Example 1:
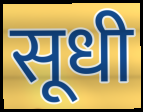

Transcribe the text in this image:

सूधी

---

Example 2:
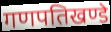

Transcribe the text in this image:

गणपतिखण्डे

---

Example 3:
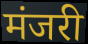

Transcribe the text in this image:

मंजरी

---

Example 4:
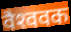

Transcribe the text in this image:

वैश्ववक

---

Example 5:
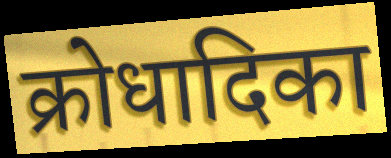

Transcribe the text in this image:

क्रोधादिका